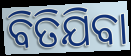
ବିତିଯିବା